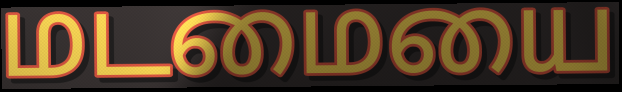
மடமையை